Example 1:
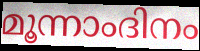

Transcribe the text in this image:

മൂന്നാംദിനം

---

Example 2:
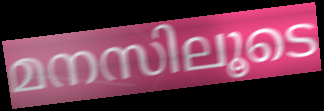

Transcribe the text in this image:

മനസിലൂടെ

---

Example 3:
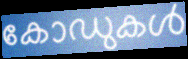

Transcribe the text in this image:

കോഡുകൾ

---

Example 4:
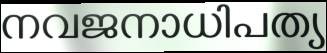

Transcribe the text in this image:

നവജനാധിപത്യ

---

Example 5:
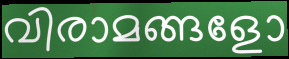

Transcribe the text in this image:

വിരാമങ്ങളോ